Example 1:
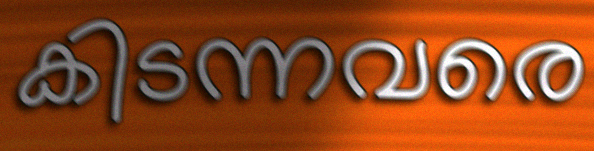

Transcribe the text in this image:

കിടന്നവരെ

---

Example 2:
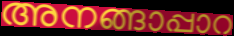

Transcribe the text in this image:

അനങ്ങാപ്പാറ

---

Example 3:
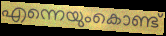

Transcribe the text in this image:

എന്നെയുംകൊണ്ട്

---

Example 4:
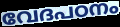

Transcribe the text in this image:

വേദപഠനം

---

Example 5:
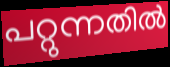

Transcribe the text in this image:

പറ്റുന്നതിൽ